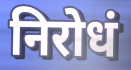
निरोधं